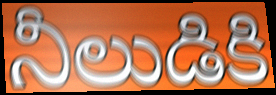
నీలుడికి